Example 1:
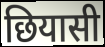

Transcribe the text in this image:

छियासी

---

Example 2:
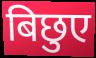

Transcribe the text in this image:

बिछुए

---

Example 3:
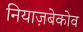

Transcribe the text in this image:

नियाज़बेकोव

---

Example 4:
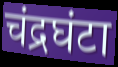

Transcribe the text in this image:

चंद्रघंटा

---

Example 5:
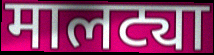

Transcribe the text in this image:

मालट्या